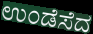
ಉಂಡೆಸೆದ